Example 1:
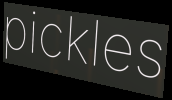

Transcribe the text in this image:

pickles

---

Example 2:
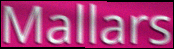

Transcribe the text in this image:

Mallars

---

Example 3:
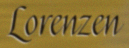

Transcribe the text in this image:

Lorenzen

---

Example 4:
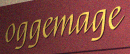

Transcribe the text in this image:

oggemage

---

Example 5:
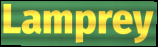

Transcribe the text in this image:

Lamprey